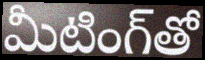
మీటింగ్‌తో